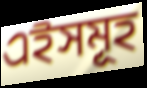
এইসমূহ